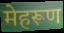
मेहरूण